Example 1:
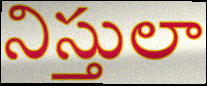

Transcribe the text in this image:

నిస్తులా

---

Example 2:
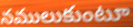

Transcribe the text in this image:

నములుకుంటూ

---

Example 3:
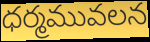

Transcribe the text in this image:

ధర్మమువలన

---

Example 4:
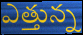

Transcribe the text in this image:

ఎత్తున్న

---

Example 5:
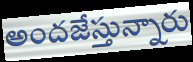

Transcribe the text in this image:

అందజేస్తున్నారు